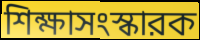
শিক্ষাসংস্কারক